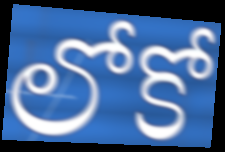
లోకో